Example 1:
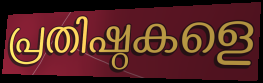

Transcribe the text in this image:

പ്രതിഷ്ഠകളെ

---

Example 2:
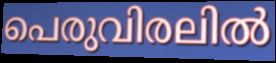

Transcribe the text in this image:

പെരുവിരലിൽ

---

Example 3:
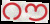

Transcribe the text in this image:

റൗ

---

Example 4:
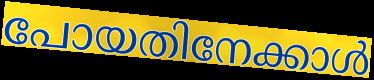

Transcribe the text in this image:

പോയതിനേക്കാൾ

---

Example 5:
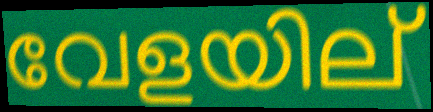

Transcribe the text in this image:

വേളയില്